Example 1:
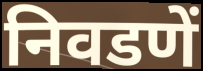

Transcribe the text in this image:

निवडणें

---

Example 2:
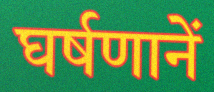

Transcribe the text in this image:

घर्षणानें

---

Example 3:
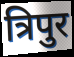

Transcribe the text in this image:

त्रिपुर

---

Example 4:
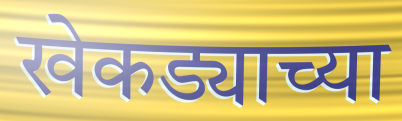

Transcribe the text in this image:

खेकड्याच्या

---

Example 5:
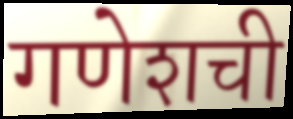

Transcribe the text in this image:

गणेशची